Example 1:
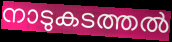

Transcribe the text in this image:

നാടുകടത്തൽ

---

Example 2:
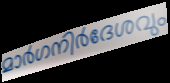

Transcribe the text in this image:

മാർഗനിർദേശവും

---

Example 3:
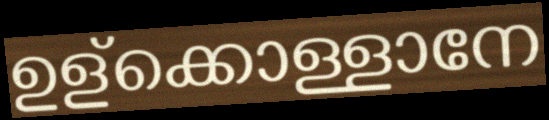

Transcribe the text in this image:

ഉള്ക്കൊള്ളാനേ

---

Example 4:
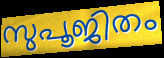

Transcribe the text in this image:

സുപൂജിതം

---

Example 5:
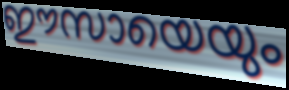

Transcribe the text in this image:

ഈസായെയും